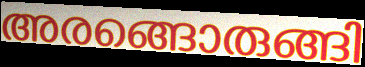
അരങ്ങൊരുങ്ങി